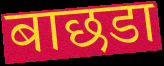
बाछडा